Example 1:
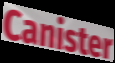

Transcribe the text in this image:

Canister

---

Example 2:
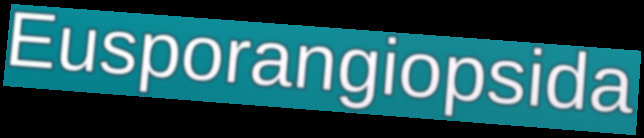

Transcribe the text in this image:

Eusporangiopsida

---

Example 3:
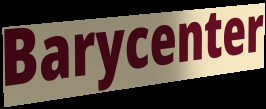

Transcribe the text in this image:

Barycenter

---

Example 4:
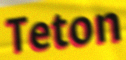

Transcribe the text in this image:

Teton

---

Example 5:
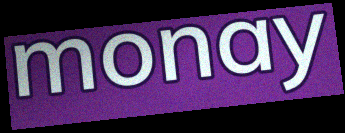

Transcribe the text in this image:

monay